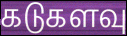
கடுகளவு